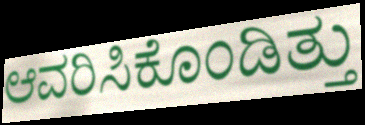
ಆವರಿಸಿಕೊಂಡಿತ್ತು